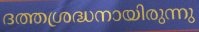
ദത്തശ്രദ്ധനായിരുന്നു